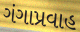
ગંગાપ્રવાહ